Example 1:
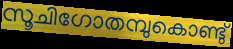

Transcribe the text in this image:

സൂചിഗോതമ്പുകൊണ്ടു്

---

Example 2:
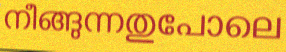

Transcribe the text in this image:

നീങ്ങുന്നതുപോലെ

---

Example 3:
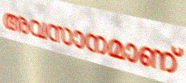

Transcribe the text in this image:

അവസാനമാണ്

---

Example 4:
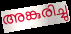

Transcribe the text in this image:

അങ്കുരിച്ചു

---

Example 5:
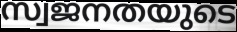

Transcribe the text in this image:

സ്വജനതയുടെ